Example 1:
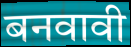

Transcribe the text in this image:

बनवावी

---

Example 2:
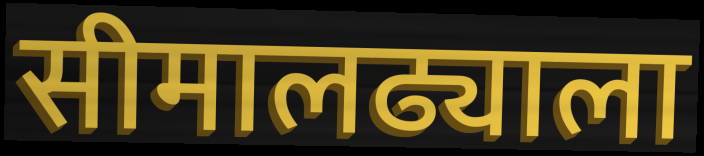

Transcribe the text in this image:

सीमालढ्याला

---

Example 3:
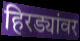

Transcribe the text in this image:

हिरड्यांवर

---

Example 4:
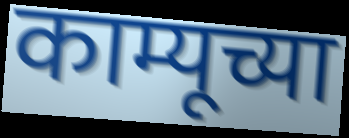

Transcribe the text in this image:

काम्यूच्या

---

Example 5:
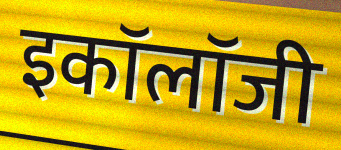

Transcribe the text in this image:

इकॉलॉजी